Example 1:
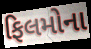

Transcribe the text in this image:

ફિલમોના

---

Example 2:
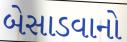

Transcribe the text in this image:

બેસાડવાનો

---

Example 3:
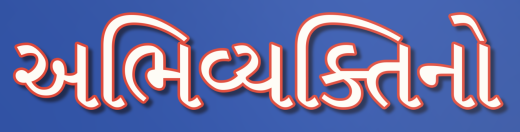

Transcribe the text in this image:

અભિવ્યક્તિનો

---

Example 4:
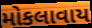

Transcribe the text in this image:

મોકલાવાય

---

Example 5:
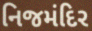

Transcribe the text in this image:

નિજમંદિર